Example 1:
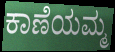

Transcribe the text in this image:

ಕಾಣೆಯಮ್ಮ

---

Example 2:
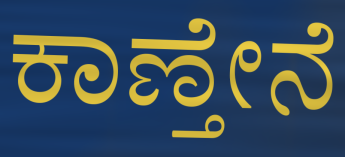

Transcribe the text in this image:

ಕಾಣ್ತೇನೆ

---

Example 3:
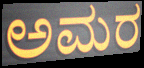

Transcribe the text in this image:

ಅಮರ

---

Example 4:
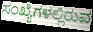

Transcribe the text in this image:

ಸಂಖ್ಯೆಗಳಲ್ಲಿರುವ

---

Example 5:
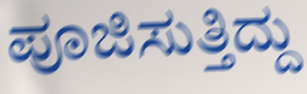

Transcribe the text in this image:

ಪೂಜಿಸುತ್ತಿದ್ದು